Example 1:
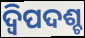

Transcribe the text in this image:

ଦ୍ବିପଦଶ୍ଚ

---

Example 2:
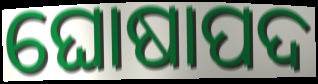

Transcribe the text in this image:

ଘୋଷାପଦ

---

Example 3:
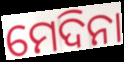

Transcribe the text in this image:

ମେଦିନା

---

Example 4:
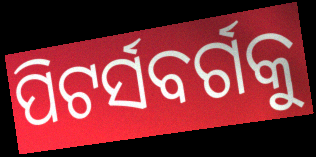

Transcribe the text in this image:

ପିଟର୍ସବର୍ଗକୁ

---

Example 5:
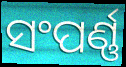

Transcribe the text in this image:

ସଂପର୍ଣ୍ଣ